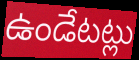
ఉండేటట్లు